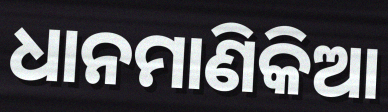
ଧାନମାଣିକିଆ